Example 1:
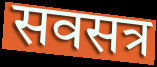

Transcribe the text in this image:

सवसत्र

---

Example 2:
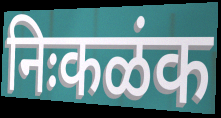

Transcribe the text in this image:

निःकळंक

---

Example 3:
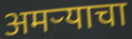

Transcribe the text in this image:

अमऱ्याचा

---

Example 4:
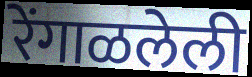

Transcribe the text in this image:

रेंगाळलेली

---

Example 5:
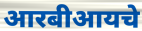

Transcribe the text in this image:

आरबीआयचे